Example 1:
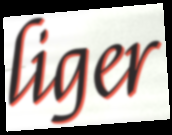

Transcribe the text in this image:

liger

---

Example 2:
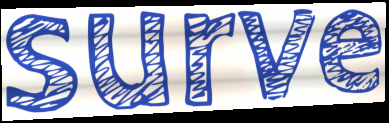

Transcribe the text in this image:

surve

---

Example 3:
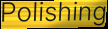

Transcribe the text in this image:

Polishing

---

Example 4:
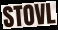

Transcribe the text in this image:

STOVL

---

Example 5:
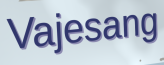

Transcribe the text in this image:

Vajesang